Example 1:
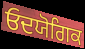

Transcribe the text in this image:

ਓਦਯੋਗਿਕ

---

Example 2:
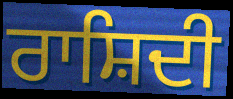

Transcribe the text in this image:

ਰਾਸ਼ਿਦੀ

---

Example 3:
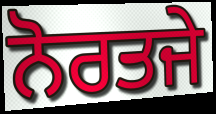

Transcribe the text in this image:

ਨੋਰਤਜੇ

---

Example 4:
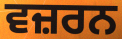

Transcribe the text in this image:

ਵਜ਼ਰਨ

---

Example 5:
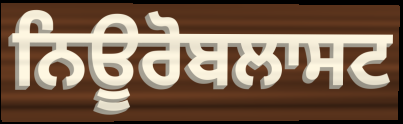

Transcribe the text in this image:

ਨਿਊਰੋਬਲਾਸਟ